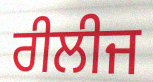
ਰੀਲੀਜ